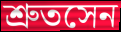
শ্রুতসেন